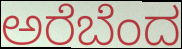
ಅರೆಬೆಂದ